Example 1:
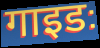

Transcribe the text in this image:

गाइडः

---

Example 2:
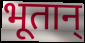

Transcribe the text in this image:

भूतान्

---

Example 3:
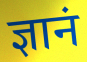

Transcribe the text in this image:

ज्ञानं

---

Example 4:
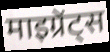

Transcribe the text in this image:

माइग्रेंट्स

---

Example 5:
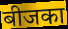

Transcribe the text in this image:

बीजका